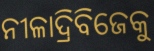
ନୀଳାଦ୍ରିବିଜେକୁ